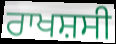
ਰਾਖਸ਼ਸੀ